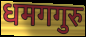
धमगगुरु